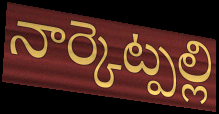
నార్కెట్పల్లి